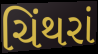
ચિંથરાં